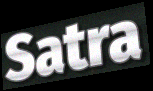
Satra